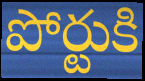
పోర్టుకి